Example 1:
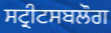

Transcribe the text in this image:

ਸਟ੍ਰੀਟਸਬਲੌਗ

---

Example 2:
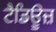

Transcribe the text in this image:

ਟੈਡਿਊਜ਼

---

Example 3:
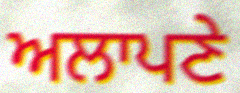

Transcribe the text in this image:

ਅਲਾਪਣੇ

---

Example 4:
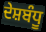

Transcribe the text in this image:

ਦੇਸ਼ਬੰਧੂ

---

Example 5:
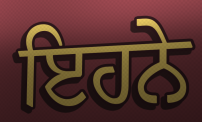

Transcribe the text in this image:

ਇਹਨੇ